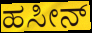
ಹಸೀನ್